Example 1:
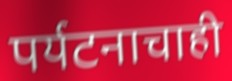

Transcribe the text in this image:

पर्यटनाचाही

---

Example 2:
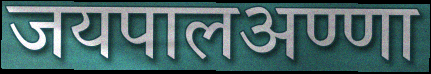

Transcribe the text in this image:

जयपालअण्णा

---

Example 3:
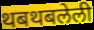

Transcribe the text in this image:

थबथबलेली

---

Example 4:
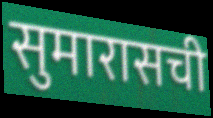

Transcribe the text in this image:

सुमारासची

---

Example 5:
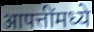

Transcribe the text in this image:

आपत्तींमध्ये